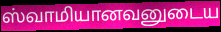
ஸ்வாமியானவனுடைய